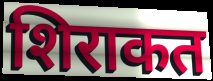
शिराकत